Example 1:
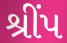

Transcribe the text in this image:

શ્રીંપ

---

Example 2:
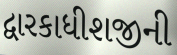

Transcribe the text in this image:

દ્વારકાધીશજીની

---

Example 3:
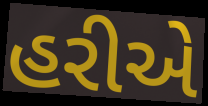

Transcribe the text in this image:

હરીએ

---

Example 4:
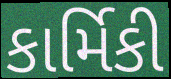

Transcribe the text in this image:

કાર્મિકી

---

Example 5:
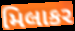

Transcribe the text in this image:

મિલાકર